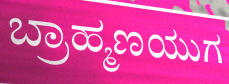
ಬ್ರಾಹ್ಮಣಯುಗ